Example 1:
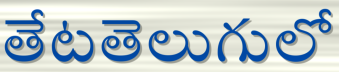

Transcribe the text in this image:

తేటతెలుగులో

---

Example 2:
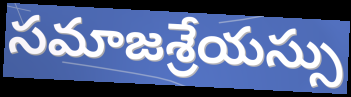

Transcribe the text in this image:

సమాజశ్రేయస్సు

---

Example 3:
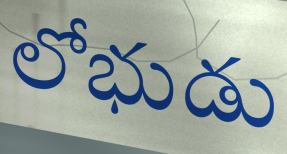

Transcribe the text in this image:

లోభుడు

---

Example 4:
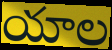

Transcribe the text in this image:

యాల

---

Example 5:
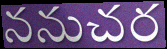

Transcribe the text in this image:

ననుచర